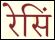
रेसिं